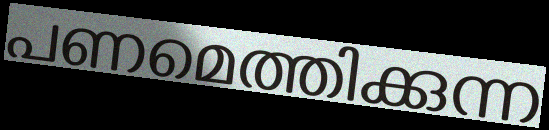
പണമെത്തിക്കുന്ന